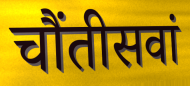
चौंतीसवां